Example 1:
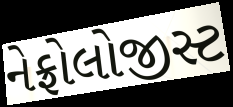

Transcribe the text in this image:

નેફ્રોલોજીસ્ટ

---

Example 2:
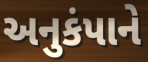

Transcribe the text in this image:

અનુકંપાને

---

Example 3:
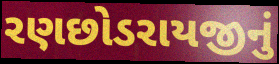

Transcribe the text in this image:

રણછોડરાયજીનું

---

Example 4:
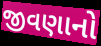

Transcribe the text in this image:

જીવણાનો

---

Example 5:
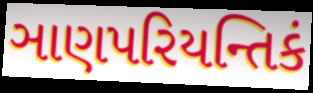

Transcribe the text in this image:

ઞાણપરિયન્તિકં